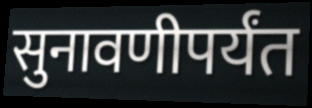
सुनावणीपर्यंत